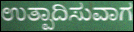
ಉತ್ಪಾದಿಸುವಾಗ